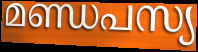
മണ്ഡപസ്യ